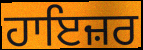
ਹਾਇਜ਼ਰ